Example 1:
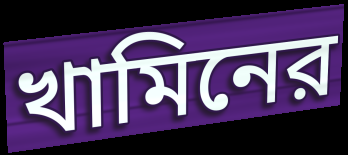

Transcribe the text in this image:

খামিনের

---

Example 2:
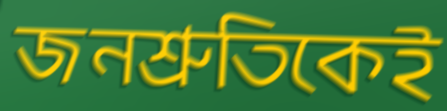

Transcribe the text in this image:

জনশ্রুতিকেই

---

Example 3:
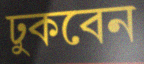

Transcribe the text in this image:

ঢুকবেন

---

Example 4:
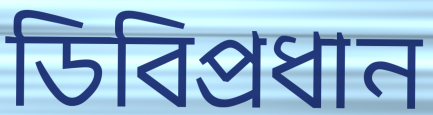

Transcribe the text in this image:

ডিবিপ্রধান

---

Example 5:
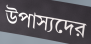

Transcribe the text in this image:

উপাস্যদের